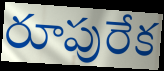
రూపురేక